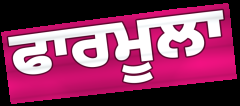
ਫਾਰਮੂਲਾ